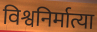
विश्वनिर्मात्या